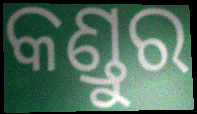
କଣ୍ଡୁର